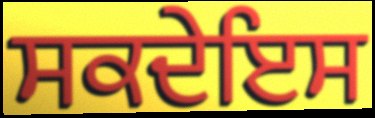
ਸਕਦੇਇਸ